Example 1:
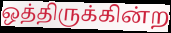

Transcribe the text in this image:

ஒத்திருக்கின்ற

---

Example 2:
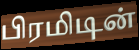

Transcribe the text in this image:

பிரமிடின்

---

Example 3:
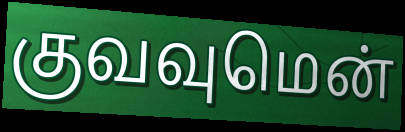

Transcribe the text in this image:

குவவுமென்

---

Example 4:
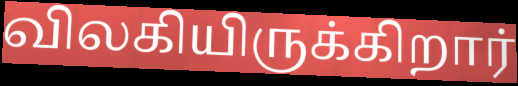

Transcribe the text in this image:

விலகியிருக்கிறார்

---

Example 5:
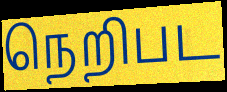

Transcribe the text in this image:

நெறிபட